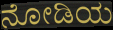
ನೋಡಿಯ